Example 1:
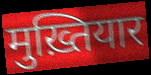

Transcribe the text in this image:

मुख़्तियार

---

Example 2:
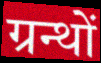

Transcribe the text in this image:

ग्रन्थों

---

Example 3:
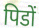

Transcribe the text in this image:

पिडों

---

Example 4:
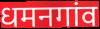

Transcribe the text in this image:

धमनगांव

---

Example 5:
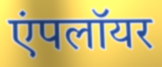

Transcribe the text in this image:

एंपलॉयर